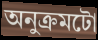
অনুক্ৰমটো